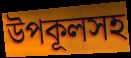
উপকূলসহ